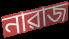
নাৱাজ